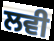
ਲਵੀ